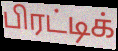
பிரட்டிக்